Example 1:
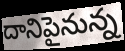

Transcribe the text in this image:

దానిపైనున్న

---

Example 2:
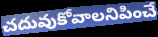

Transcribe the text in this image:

చదువుకోవాలనిపించే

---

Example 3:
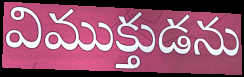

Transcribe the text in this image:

విముక్తుడను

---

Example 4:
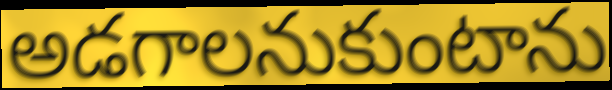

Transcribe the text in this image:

అడగాలనుకుంటాను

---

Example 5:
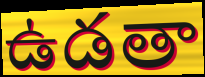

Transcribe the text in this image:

ఉడతా